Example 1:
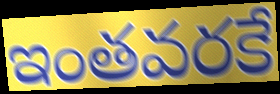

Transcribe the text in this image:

ఇంతవరకే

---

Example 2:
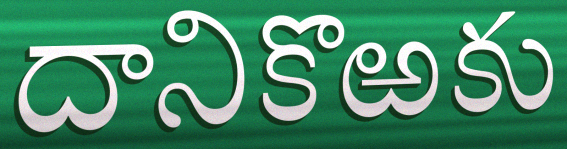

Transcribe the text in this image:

దానికొఱకు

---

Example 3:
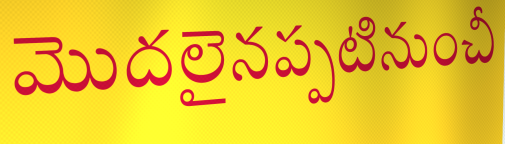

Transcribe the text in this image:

మొదలైనప్పటినుంచీ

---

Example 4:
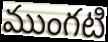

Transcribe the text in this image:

ముంగటి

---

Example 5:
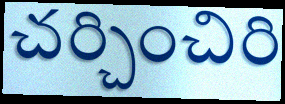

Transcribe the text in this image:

చర్చించిరి